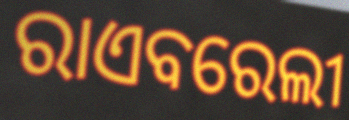
ରାଏବରେଲୀ